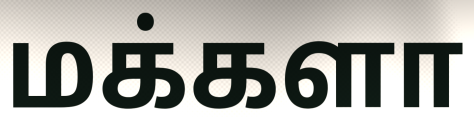
மக்களா